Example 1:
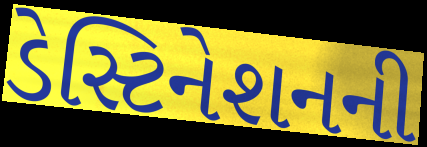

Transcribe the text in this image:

ડેસ્ટિનેશનની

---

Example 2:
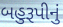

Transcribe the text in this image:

બહુરૂપીનું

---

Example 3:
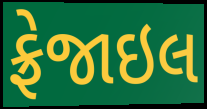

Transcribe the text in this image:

ફ્રેજાઇલ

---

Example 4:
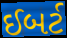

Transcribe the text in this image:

ઈબર્ટ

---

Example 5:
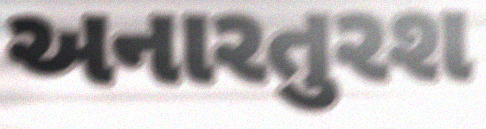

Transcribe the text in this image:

અનારતુરશ